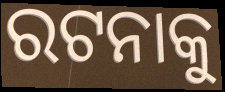
ରଟନାକୁ